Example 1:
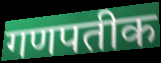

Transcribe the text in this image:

गणपतीक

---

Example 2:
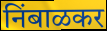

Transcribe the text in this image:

निंबाळकर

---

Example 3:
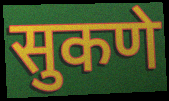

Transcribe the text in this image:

सुकणे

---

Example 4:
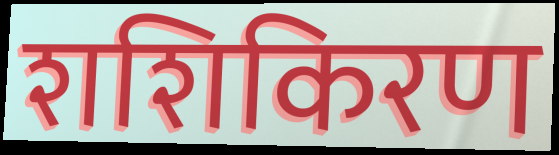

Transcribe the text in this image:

शशिकिरण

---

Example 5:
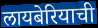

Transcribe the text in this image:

लायबेरियाची